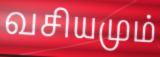
வசியமும்